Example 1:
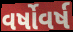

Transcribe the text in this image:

વર્ષોવર્ષ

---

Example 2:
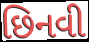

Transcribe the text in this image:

છિનવી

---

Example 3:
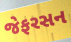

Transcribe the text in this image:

જેફરસન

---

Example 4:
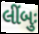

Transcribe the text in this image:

લીંબુઃ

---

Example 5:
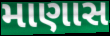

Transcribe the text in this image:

માણાસ